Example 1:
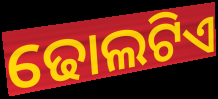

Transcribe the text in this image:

ଢୋଲଟିଏ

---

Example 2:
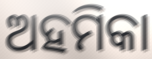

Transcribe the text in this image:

ଅହମିକା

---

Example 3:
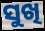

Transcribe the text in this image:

ସୁଖି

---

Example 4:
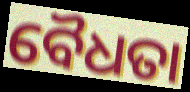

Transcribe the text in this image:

ବୈଧତା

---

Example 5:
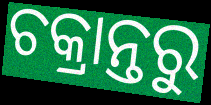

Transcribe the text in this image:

ଚକ୍ରାନ୍ତରୁ